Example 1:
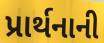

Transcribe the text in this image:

પ્રાર્થનાની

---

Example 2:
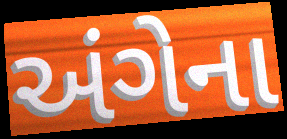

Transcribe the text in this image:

અંગેના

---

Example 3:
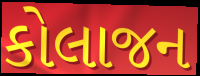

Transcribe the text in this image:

કોલાજન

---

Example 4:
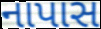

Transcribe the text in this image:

નાપાસ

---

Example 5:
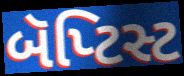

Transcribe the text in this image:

બૅપ્ટિસ્ટ